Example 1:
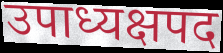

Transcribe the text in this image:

उपाध्यक्षपद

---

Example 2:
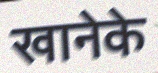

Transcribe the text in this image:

खानेके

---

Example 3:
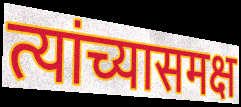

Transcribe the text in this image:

त्यांच्यासमक्ष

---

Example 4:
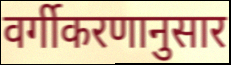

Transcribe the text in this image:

वर्गीकरणानुसार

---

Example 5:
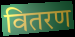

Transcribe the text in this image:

वितरण